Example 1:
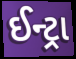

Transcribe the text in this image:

ઈન્ટ્રા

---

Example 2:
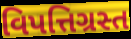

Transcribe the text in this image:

વિપત્તિગ્રસ્ત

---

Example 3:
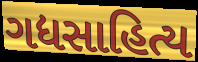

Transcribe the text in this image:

ગદ્યસાહિત્ય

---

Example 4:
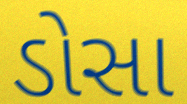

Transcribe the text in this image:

ડોસા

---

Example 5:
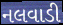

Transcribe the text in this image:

નલવાડી